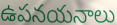
ఉపనయనాలు